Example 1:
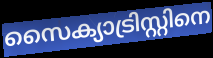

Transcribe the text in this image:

സൈക്യാട്രിസ്റ്റിനെ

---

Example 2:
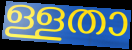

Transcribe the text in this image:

ള്ളതാ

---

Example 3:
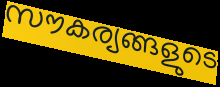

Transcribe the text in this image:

സൗകര്യങ്ങളുടെ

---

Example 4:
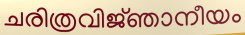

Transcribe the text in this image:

ചരിത്രവിജ്‌ഞാനീയം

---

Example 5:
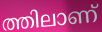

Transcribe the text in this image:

ത്തിലാണ്